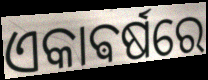
ଏକାଵର୍ଷରେ